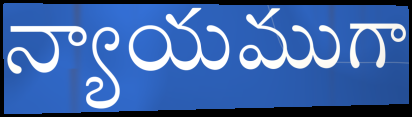
న్యాయముగా